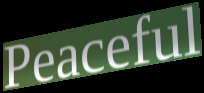
Peaceful